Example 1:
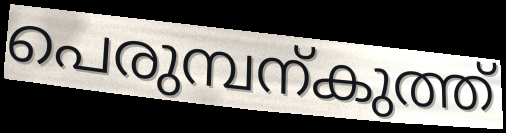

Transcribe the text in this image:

പെരുമ്പന്കുത്ത്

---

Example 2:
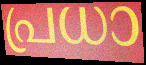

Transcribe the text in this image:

പ്രധാ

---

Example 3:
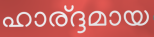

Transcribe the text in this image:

ഹാര്ദ്ദമായ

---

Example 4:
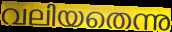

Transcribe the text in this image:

വലിയതെന്നു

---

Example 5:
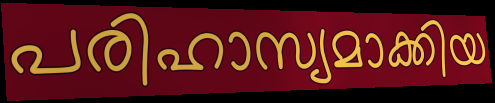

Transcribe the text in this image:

പരിഹാസ്യമാക്കിയ